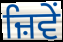
ਜ਼ਿਵੇਂ